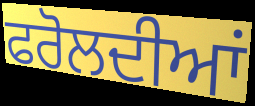
ਫਰੋਲਦੀਆਂ